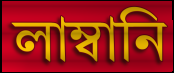
লাম্বানি